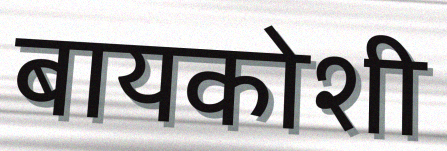
बायकोशी